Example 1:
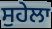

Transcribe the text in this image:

ਸੁਹੇਲਾ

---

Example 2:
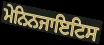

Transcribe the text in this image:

ਮੇਨਿਨਜਾਇਟਿਸ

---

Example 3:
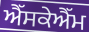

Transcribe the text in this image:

ਐੱਸਕੇਐੱਮ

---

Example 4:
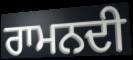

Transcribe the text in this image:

ਰਾਮਨਦੀ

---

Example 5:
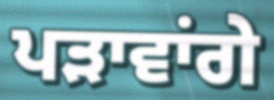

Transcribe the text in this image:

ਪੜਾਵਾਂਗੇ